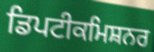
ਡਿਪਟੀਕਮਿਸ਼ਨਰ